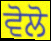
ਵੋਲੋ